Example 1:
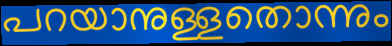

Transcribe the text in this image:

പറയാനുള്ളതൊന്നും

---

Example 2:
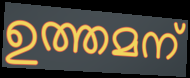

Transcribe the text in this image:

ഉത്തമന്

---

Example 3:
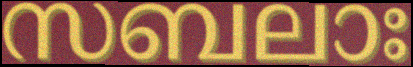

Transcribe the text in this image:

സബലാഃ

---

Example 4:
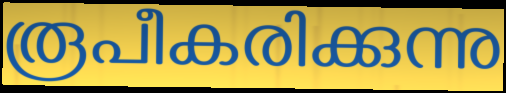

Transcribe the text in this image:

രൂപീകരിക്കുന്നു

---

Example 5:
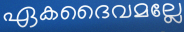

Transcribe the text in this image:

ഏകദൈവമല്ലേ